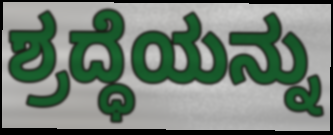
ಶ್ರದ್ಧೆಯನ್ನು